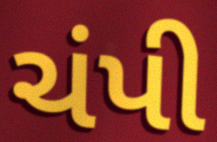
ચંપી